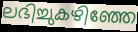
ലഭിച്ചുകഴിഞ്ഞേ